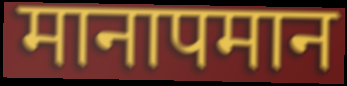
मानापमान